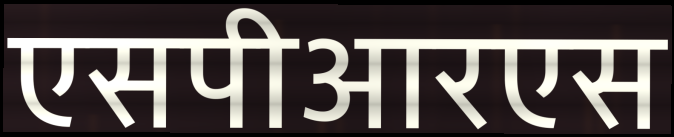
एसपीआरएस